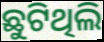
ଛୁଟିଥିଲି